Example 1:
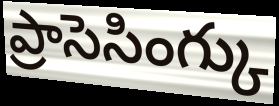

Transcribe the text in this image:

ప్రాసెసింగ్కు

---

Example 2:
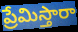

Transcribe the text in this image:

ప్రేమిస్తారా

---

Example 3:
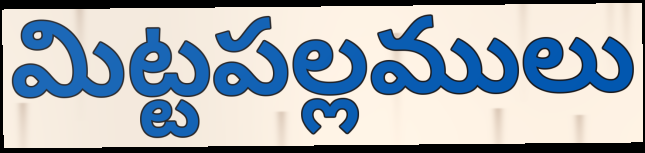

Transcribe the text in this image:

మిట్టపల్లములు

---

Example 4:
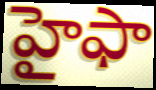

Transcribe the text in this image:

హైఫా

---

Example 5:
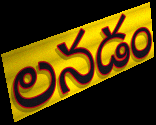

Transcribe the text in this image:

లనడం